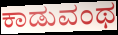
ಕಾಡುವಂಥ